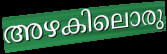
അഴകിലൊരു